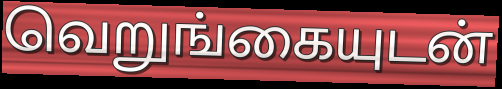
வெறுங்கையுடன்